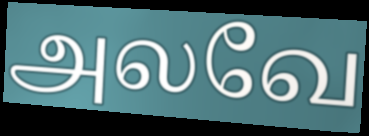
அலவே